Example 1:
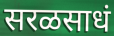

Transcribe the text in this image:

सरळसाधं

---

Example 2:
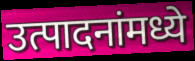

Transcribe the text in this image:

उत्पादनांमध्ये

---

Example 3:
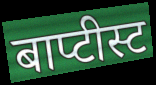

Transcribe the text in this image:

बाप्टीस्ट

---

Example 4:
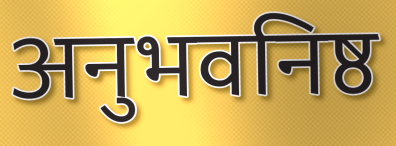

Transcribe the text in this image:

अनुभवनिष्ठ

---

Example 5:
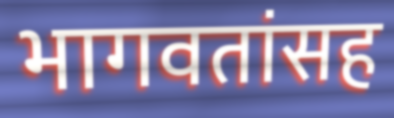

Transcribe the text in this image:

भागवतांसह